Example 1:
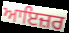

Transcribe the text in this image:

ਆਇਜ਼ਰ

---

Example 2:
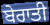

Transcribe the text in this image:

ਬੇਰਾਤੀ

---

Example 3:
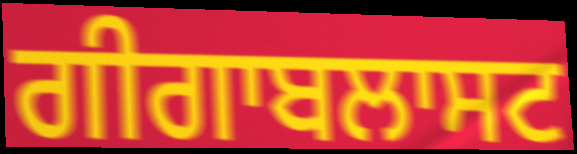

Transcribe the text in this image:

ਗੀਗਾਬਲਾਸਟ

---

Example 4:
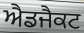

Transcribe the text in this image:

ਐਡਜੈਕਟ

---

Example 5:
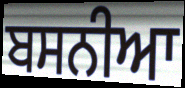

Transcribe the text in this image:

ਬਸਨੀਆ